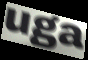
uga